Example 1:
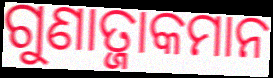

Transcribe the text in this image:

ଗୁଣାତ୍ଜାକମାନ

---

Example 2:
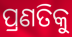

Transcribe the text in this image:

ପ୍ରଣତିକୁ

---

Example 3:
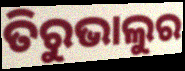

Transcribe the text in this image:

ତିରୁଭାଲୁର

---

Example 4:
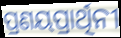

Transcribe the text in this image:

ପ୍ରଣୟପ୍ରାର୍ଥିନୀ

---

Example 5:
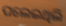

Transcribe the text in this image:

ପଲେଇଥିଲି